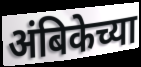
अंबिकेच्या